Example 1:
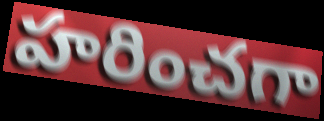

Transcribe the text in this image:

హరించగా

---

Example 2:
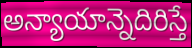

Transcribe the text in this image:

అన్యాయాన్నెదిరిస్తే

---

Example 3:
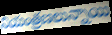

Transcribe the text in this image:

నియంత్రణలున్నాయి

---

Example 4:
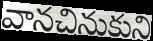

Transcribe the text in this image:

వానచినుకుని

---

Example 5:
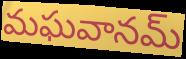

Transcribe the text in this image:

మఘవానమ్